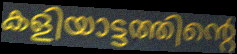
കളിയാട്ടത്തിന്റെ